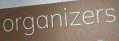
organizers